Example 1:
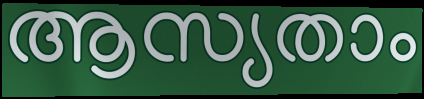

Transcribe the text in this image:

ആസ്യതാം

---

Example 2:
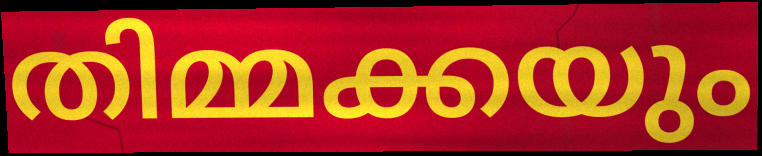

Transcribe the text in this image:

തിമ്മക്കയും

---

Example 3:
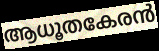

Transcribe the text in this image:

ആധൂതകേരൻ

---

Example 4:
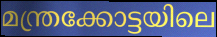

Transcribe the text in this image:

മന്ത്രക്കോട്ടയിലെ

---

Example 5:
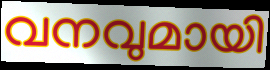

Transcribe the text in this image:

വനവുമായി